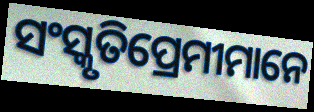
ସଂସ୍କୃତିପ୍ରେମୀମାନେ